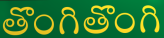
తొంగితొంగి